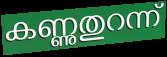
കണ്ണുതുറന്ന്